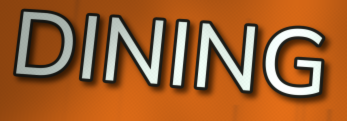
DINING